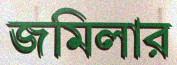
জমিলার